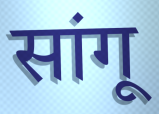
सांगू